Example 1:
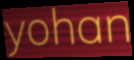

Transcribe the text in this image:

yohan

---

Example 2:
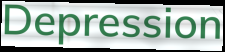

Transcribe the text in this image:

Depression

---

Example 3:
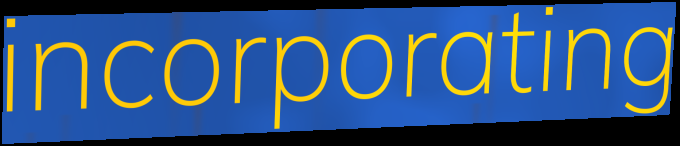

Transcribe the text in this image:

incorporating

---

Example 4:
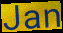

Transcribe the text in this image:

Jan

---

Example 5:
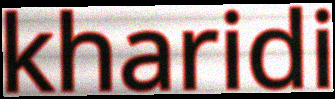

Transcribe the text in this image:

kharidi